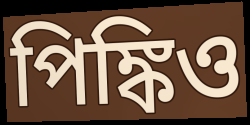
পিঙ্কিও